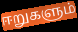
ஈறுகளும்